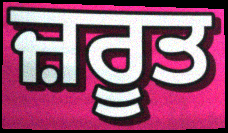
ਜ਼ਰੂਤ